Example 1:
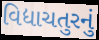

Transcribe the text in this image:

વિદ્યાચતુરનું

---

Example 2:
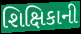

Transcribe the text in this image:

શિક્ષિકાની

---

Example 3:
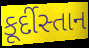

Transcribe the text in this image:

કૂર્દીસ્તાન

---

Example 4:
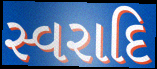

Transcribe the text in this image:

સ્વરાદિ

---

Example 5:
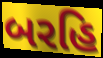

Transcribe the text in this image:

બરહિ